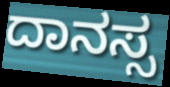
ದಾನಸ್ಸ